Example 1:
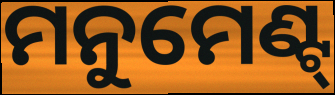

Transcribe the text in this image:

ମନୁମେଣ୍ଟ୍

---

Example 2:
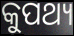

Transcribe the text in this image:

କୁପଥ୍ୟ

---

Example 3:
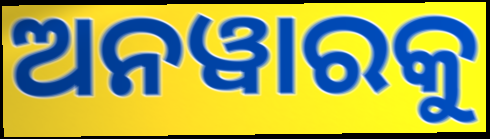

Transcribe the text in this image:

ଅନୱାରକୁ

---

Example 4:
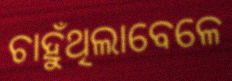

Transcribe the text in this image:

ଚାହୁଁଥିଲାବେଳେ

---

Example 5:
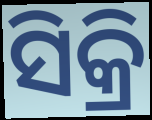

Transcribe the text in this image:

ସିକ୍ରି